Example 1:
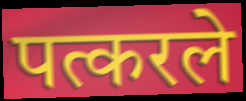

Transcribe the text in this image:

पत्करले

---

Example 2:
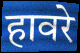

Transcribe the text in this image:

हावरे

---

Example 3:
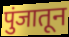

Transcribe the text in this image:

पुंजातून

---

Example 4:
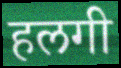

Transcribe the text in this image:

हलगी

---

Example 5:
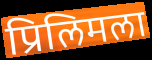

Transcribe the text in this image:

प्रिलिमला